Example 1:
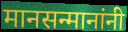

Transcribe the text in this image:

मानसन्मानांनी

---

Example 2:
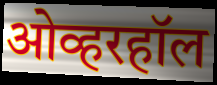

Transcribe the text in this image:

ओव्हरहॉल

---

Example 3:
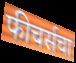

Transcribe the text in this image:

फीचर्सचा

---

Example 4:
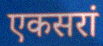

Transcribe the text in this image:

एकसरां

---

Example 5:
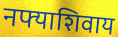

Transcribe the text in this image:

नफ्याशिवाय